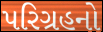
પરિગ્રહનો